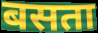
बसता